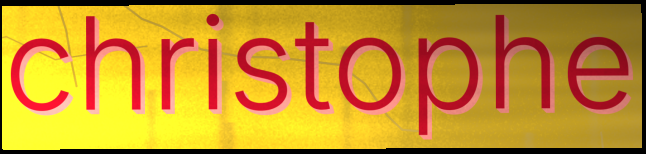
christophe